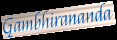
Gambhirananda